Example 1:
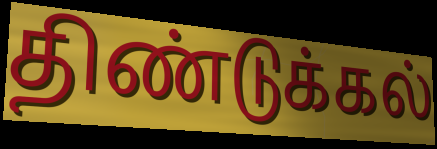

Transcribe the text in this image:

திண்டுக்கல்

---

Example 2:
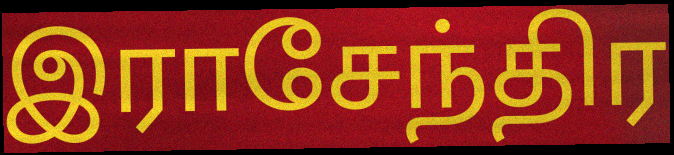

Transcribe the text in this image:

இராசேந்திர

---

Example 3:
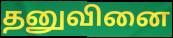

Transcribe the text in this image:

தனுவினை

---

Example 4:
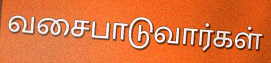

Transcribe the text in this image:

வசைபாடுவார்கள்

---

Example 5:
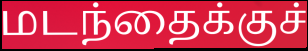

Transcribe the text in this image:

மடந்தைக்குச்